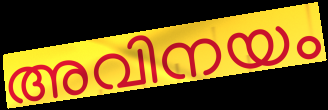
അവിനയം